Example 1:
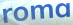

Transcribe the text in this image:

roma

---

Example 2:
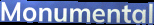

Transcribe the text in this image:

Monumental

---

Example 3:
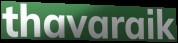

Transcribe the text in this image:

thavaraik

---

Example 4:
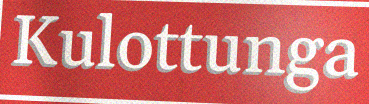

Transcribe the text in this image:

Kulottunga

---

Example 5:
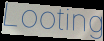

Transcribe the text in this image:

Looting